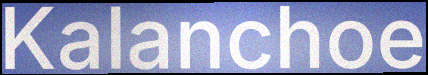
Kalanchoe